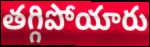
తగ్గిపోయారు